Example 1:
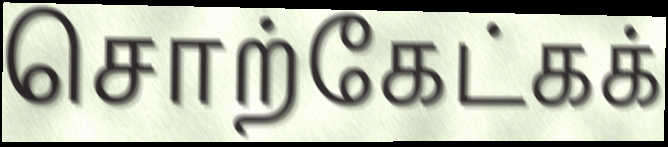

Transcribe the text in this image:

சொற்கேட்கக்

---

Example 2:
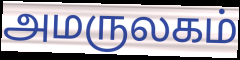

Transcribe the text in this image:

அமருலகம்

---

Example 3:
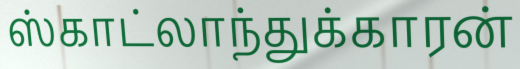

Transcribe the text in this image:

ஸ்காட்லாந்துக்காரன்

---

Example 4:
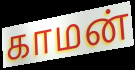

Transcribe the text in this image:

காமன்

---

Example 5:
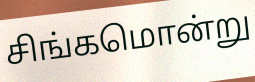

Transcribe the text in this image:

சிங்கமொன்று